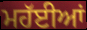
ਮਹੱਈਆਂ